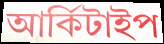
আৰ্কিটাইপ